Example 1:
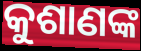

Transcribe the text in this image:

କୁଶାଣଙ୍କ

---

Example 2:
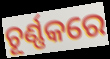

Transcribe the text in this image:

ଚୂର୍ଣ୍ଣକରେ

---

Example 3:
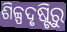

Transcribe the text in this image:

ଶିଳ୍ପଦୃଷ୍ଟିରୁ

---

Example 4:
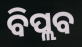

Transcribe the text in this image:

ବିପ୍ଲବ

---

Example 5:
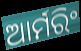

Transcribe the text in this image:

ଆର୍ମରିଂ